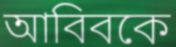
আবিবকে